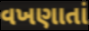
વખણાતાં